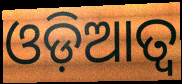
ଓଡ଼ିଆତ୍ୱ